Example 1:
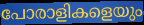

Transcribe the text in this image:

പോരാളികളെയും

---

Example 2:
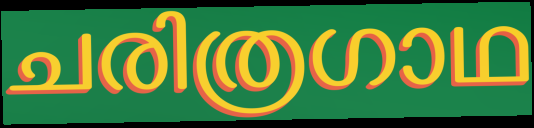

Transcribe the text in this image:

ചരിത്രഗാഥ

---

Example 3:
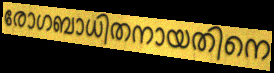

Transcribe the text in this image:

രോഗബാധിതനായതിനെ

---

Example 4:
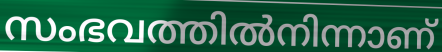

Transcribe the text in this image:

സംഭവത്തിൽനിന്നാണ്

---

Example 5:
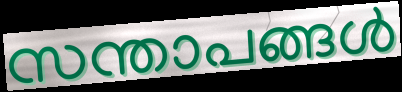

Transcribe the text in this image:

സന്താപങ്ങൾ